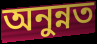
অনুন্নত